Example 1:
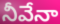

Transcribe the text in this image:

నీవేనా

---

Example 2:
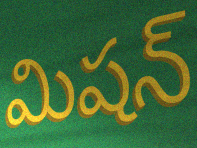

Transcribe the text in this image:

మిషన్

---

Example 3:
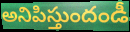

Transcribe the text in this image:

అనిపిస్తుందండీ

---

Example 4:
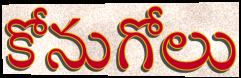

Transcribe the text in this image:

కోనుగోలు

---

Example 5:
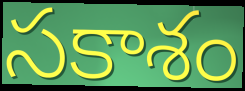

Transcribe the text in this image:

సకాశం